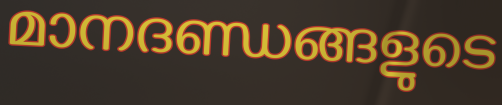
മാനദണ്ഡങ്ങളുടെ